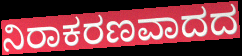
ನಿರಾಕರಣವಾದದ